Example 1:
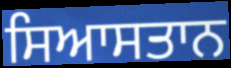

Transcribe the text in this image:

ਸਿਆਸਤਾਨ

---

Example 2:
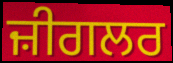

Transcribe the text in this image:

ਜ਼ੀਗਲਰ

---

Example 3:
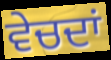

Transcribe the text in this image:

ਵੇਚਦਾਂ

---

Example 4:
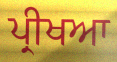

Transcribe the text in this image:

ਪ੍ਰੀਖਆ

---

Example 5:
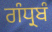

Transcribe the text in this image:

ਗੰਧ੍ਰਬੰ